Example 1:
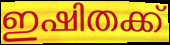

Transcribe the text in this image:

ഇഷിതക്ക്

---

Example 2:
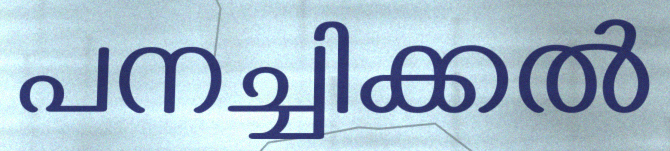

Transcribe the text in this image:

പനച്ചിക്കൽ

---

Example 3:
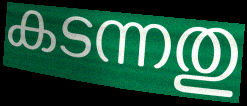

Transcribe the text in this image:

കടന്നതു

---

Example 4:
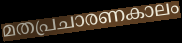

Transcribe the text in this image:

മതപ്രചാരണകാലം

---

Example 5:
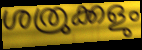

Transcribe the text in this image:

ശത്രുക്കളും